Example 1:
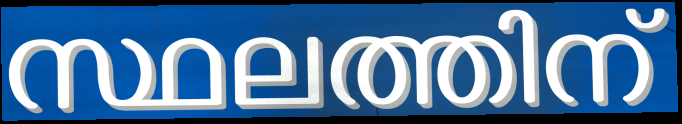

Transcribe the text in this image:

സ്ഥലത്തിന്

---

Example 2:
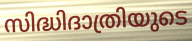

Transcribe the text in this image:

സിദ്ധിദാത്രിയുടെ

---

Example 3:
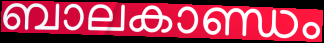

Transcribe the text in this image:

ബാലകാണ്ഡം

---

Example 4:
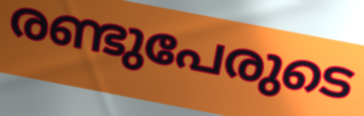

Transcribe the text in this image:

രണ്ടുപേരുടെ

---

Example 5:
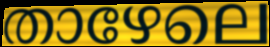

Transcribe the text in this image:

താഴേലെ